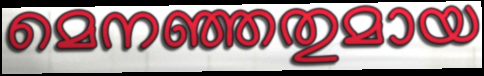
മെനഞ്ഞതുമായ